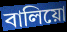
বালিয়ো